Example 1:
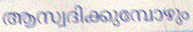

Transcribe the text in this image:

ആസ്വദിക്കുമ്പോഴും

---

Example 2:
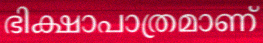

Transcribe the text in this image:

ഭിക്ഷാപാത്രമാണ്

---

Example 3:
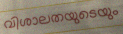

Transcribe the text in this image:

വിശാലതയുടെയും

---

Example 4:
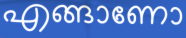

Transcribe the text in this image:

എങ്ങാണോ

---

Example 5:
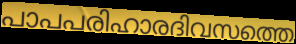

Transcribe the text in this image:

പാപപരിഹാരദിവസത്തെ